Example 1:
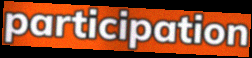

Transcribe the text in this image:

participation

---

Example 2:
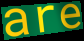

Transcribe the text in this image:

are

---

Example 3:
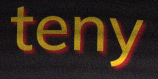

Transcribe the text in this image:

teny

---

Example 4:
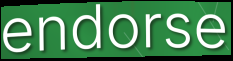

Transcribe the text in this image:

endorse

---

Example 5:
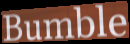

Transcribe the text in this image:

Bumble